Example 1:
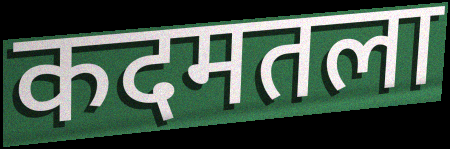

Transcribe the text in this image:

कदमतला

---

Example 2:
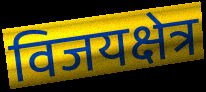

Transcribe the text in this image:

विजयक्षेत्र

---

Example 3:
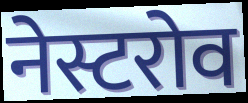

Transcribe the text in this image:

नेस्टरोव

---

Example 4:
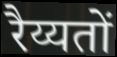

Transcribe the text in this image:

रैय्यतों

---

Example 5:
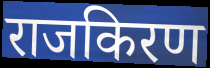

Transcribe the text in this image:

राजकिरण